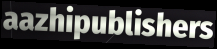
aazhipublishers